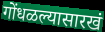
गोंधळल्यासारखं